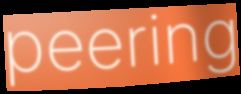
peering